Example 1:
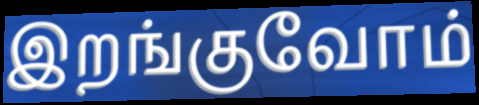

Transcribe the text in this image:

இறங்குவோம்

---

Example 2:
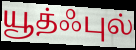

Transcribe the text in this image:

யூத்ஃபுல்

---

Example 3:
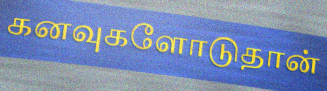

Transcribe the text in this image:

கனவுகளோடுதான்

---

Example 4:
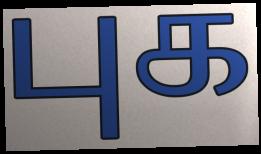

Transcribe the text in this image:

புக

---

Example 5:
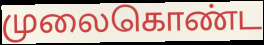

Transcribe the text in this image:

முலைகொண்ட